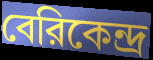
বেরিকেন্দ্র